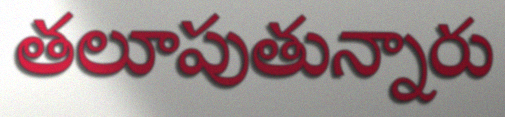
తలూపుతున్నారు